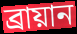
ব্রায়ান